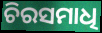
ଚିରସମାଧି